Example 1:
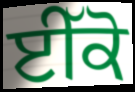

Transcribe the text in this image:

ਈੱਕੋ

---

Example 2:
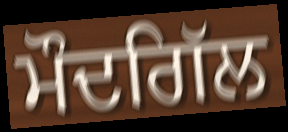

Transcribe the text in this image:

ਮੌਦਗਿੱਲ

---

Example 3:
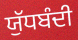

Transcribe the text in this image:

ਯੁੱਧਬੰਦੀ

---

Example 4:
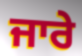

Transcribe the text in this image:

ਜਾਰੇ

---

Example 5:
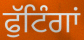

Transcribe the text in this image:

ਫੁੱਟਿੰਗਾਂ